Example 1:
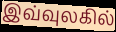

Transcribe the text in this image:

இவ்வுலகில்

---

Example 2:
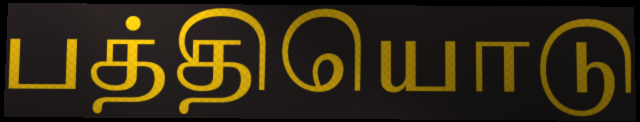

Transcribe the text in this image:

பத்தியொடு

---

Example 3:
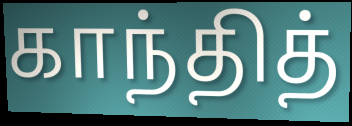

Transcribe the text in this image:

காந்தித்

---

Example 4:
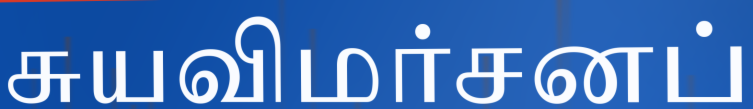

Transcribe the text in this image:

சுயவிமர்சனப்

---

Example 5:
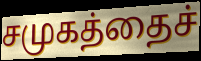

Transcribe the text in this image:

சமுகத்தைச்